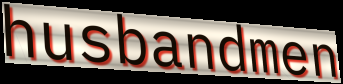
husbandmen